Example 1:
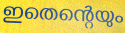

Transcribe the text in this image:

ഇതെന്റെയും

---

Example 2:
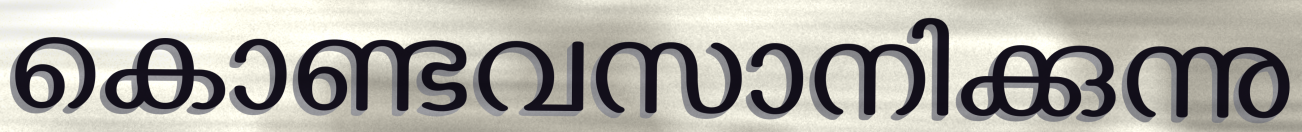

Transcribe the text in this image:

കൊണ്ടവസാനിക്കുന്നു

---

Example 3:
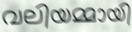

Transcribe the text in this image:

വലിയമ്മായി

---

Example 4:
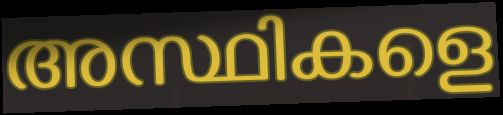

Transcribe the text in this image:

അസ്ഥികളെ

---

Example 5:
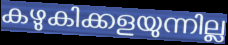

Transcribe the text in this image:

കഴുകിക്കളയുന്നില്ല